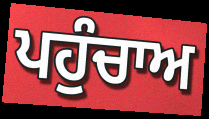
ਪਹੁੰਚਾਅ